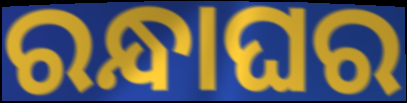
ରନ୍ଧାଘର